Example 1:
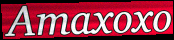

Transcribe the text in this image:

Amaxoxo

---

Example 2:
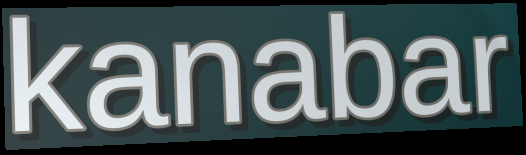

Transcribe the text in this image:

kanabar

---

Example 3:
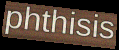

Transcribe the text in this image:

phthisis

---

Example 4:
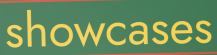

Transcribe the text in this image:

showcases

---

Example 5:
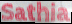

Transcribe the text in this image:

Sathia